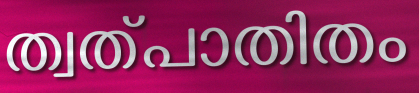
ത്വത്പാതിതം